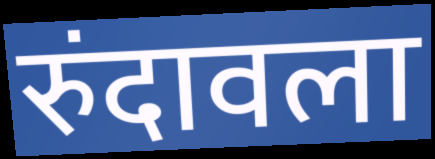
रुंदावला